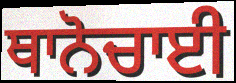
ਥਾਨੋਚਾਈ